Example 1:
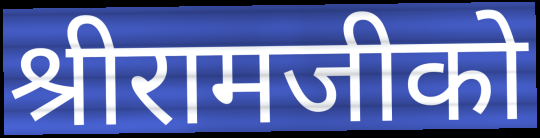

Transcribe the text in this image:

श्रीरामजीको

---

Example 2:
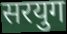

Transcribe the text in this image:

सरयुग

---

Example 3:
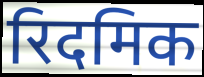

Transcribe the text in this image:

रिदमिक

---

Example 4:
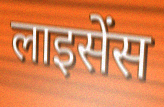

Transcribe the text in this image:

लाइसेंस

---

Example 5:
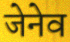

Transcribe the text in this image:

जेनेव